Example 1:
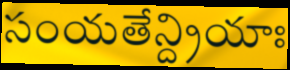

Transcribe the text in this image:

సంయతేన్ద్రియాః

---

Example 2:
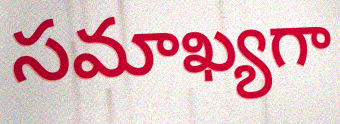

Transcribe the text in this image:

సమాఖ్యగా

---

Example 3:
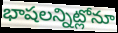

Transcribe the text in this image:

భాషలన్నిట్లోనూ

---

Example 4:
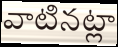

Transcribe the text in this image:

వాటినట్లా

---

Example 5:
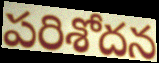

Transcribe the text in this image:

పరిశోదన